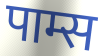
पाम्स